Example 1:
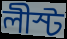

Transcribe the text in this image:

লীস্ট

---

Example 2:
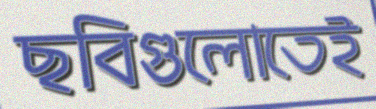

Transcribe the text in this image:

ছবিগুলোতেই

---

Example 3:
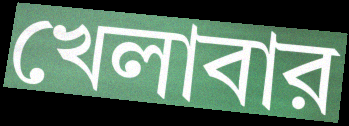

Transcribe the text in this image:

খেলাবার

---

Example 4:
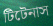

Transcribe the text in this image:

টিটেনাস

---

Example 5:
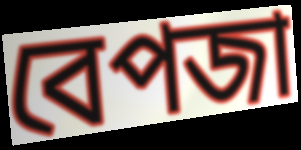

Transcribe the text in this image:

বেপজা